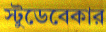
স্টুডেবেকার